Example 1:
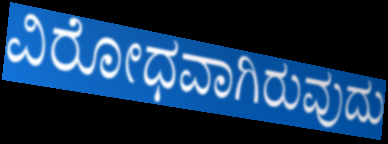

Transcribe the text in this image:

ವಿರೋಧವಾಗಿರುವುದು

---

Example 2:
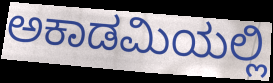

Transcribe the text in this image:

ಅಕಾಡಮಿಯಲ್ಲಿ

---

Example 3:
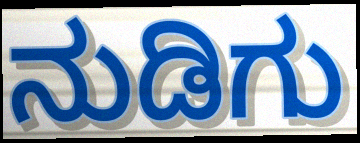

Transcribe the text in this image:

ನುಡಿಗು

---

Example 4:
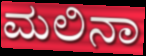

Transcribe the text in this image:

ಮಲಿನಾ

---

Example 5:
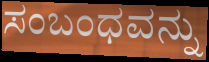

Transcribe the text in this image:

ಸಂಬಂಧವನ್ನು